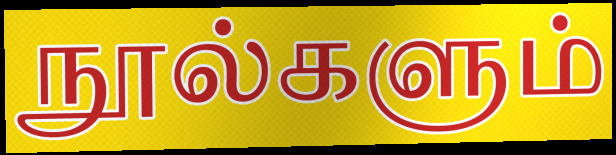
நூல்களும்